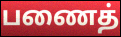
பணைத்